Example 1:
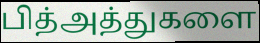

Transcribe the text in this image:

பித்அத்துகளை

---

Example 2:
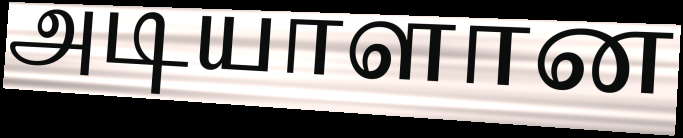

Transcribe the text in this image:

அடியாளான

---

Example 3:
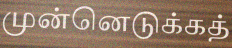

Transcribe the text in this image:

முன்னெடுக்கத்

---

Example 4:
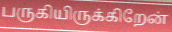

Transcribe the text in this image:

பருகியிருக்கிறேன்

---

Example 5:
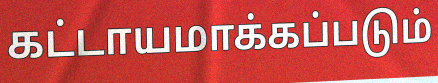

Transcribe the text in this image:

கட்டாயமாக்கப்படும்